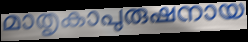
മാതൃകാപുരുഷനായ